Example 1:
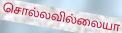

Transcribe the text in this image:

சொல்லவில்லையா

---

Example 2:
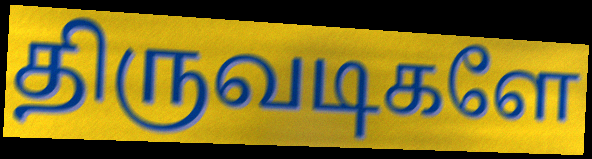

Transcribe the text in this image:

திருவடிகளே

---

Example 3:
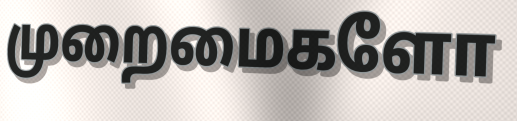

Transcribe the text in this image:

முறைமைகளோ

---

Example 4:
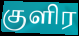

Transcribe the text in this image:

குளிர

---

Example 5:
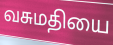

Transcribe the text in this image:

வசுமதியை